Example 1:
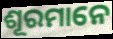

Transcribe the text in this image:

ଶୂରମାନେ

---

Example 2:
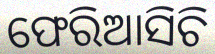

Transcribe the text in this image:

ଫେରିଆସିଚି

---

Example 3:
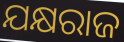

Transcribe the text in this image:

ଯକ୍ଷରାଜ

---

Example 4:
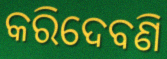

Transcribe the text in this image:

କରିଦେବଣି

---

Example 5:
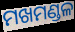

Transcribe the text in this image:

ମଖମଣ୍ଡଳ